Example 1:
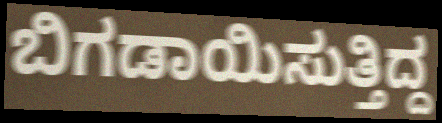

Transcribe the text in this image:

ಬಿಗಡಾಯಿಸುತ್ತಿದ್ದ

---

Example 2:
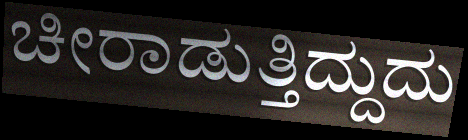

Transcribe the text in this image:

ಚೀರಾಡುತ್ತಿದ್ದುದು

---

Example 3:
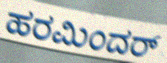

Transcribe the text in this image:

ಹರಮಿಂದರ್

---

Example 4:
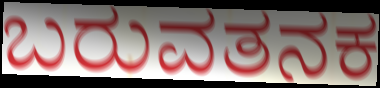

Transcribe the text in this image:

ಬರುವತನಕ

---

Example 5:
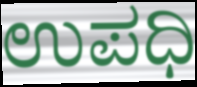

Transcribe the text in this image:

ಉಪಧಿ